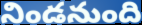
నిండనుంది